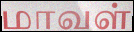
மாவள்